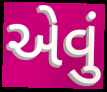
એવું